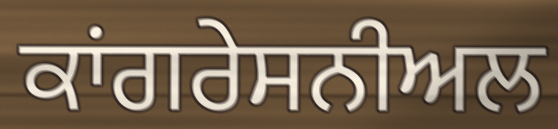
ਕਾਂਗਰੇਸਨੀਅਲ